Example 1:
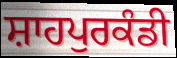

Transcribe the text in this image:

ਸ਼ਾਹਪੁਰਕੰਡੀ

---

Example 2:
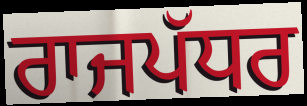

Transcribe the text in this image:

ਰਾਜਪੱਧਰ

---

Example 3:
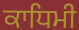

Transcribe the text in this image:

ਕਾਧਿਮੀ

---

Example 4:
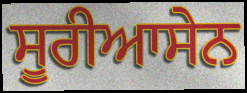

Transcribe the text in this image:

ਸੂਰੀਆਸੇਨ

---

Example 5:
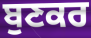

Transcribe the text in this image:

ਬੁਣਕਰ